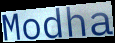
Modha